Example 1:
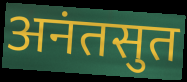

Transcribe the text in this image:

अनंतसुत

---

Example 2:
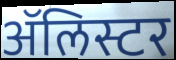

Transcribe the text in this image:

ॲलिस्टर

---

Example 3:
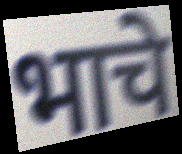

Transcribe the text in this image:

भाचे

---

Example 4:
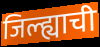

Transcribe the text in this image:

जिल्ह्याची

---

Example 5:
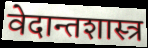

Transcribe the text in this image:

वेदान्तशास्त्र